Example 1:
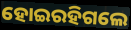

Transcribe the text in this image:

ହୋଇରହିଗଲେ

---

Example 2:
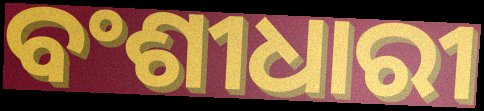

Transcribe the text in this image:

ବଂଶୀଧାରୀ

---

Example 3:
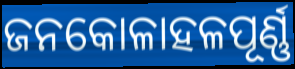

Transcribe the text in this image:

ଜନକୋଳାହଳପୂର୍ଣ୍ଣ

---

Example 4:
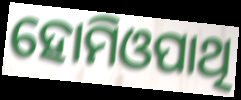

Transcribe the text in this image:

ହୋମିଓପାଥି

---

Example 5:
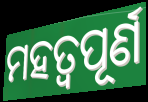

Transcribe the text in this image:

ମହତ୍ୱପୂର୍ଣ